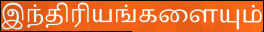
இந்திரியங்களையும்